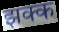
झक्क